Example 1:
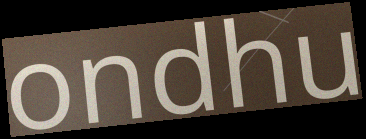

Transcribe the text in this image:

ondhu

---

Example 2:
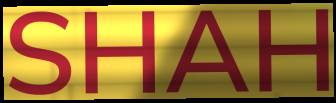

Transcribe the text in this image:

SHAH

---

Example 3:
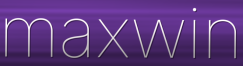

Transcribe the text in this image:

maxwin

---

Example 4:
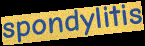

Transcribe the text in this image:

spondylitis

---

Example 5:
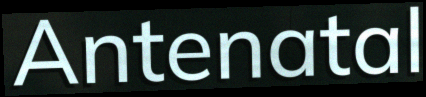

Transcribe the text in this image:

Antenatal